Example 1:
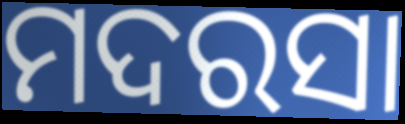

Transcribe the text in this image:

ମଦରସା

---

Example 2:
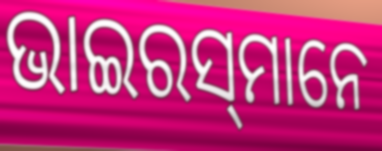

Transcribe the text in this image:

ଭାଇରସ୍‌ମାନେ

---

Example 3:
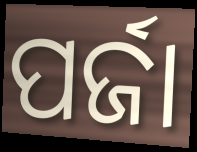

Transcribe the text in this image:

ପର୍ଜା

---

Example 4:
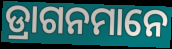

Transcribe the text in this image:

ଡ୍ରାଗନମାନେ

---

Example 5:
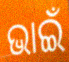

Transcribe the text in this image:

ଭାଇଁ